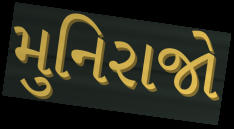
મુનિરાજો